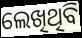
ଲେଖିଥିବି